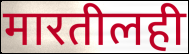
मारतीलही